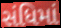
સંધિમાં